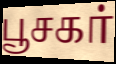
பூசகர்